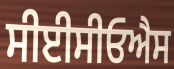
ਸੀਈਸੀਓਐਸ